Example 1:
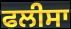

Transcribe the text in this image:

ਫਲੀਸਾ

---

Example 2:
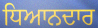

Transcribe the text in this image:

ਧਿਆਨਦਾਰ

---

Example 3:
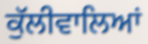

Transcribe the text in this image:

ਕੁੱਲੀਵਾਲਿਆਂ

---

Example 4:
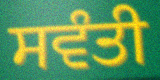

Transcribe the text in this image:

ਸਵੰਤੀ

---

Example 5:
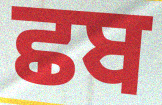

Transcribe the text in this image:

ਛਬ